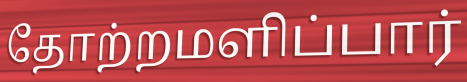
தோற்றமளிப்பார்